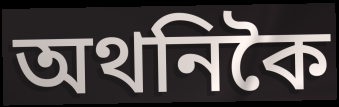
অথনিকৈ